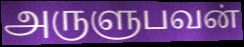
அருளுபவன்